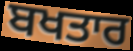
ਬਖਤਾਰ